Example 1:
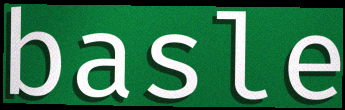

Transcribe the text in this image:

basle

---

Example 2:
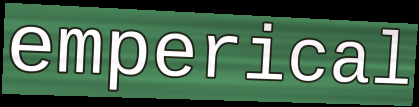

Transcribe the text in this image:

emperical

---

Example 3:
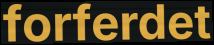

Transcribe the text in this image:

forferdet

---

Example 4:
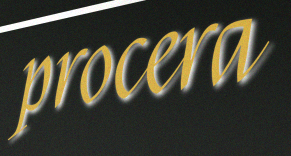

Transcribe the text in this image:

procera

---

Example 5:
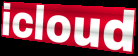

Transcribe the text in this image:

icloud